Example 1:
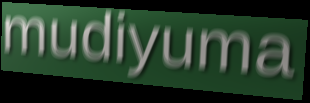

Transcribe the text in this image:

mudiyuma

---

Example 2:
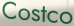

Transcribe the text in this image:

Costco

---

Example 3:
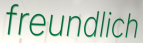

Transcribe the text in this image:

freundlich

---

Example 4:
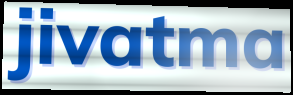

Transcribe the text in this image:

jivatma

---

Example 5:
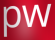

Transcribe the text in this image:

pw